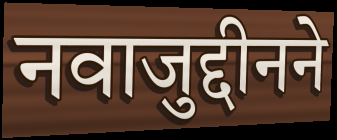
नवाजुद्दीनने